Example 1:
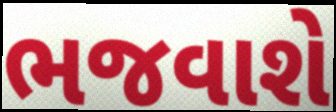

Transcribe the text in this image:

ભજવાશે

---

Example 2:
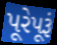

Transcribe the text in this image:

પૂરેપૂરૂં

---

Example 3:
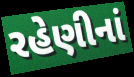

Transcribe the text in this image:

રહેણીનાં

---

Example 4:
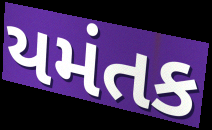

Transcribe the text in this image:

યમંતક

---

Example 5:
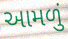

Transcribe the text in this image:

આમળું